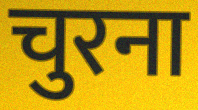
चुरना